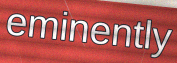
eminently